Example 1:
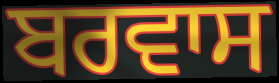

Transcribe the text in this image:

ਬਰਵਾਸ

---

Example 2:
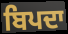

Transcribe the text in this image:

ਬਿਪਦਾ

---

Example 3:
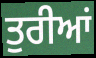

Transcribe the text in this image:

ਤੁਰੀਆਂ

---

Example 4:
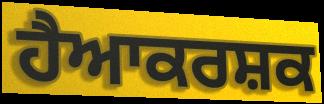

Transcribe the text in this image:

ਹੈਆਕਰਸ਼ਕ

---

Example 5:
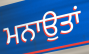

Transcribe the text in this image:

ਮਨਾਉਤਾਂ